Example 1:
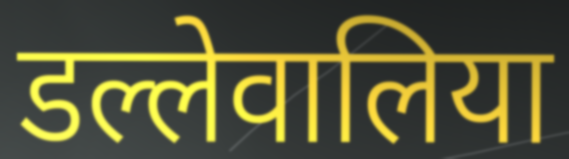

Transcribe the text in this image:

डल्लेवालिया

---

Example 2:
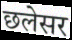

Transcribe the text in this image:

छलेसर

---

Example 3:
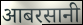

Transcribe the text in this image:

आबरसानी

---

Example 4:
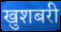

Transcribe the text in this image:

खुशबरी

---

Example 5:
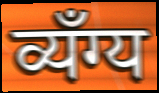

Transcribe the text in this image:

व्यँग्य